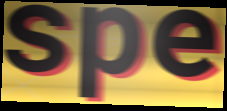
spe